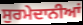
ਸੁਰਮੇਦਾਨੀਆਂ